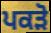
ਪਕੜੋ